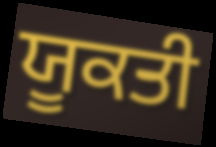
ਯੂਕਤੀ